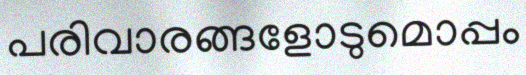
പരിവാരങ്ങളോടുമൊപ്പം